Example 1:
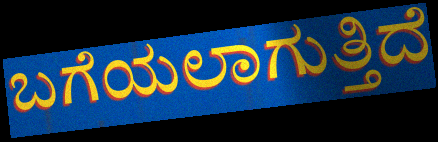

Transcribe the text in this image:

ಬಗೆಯಲಾಗುತ್ತಿದೆ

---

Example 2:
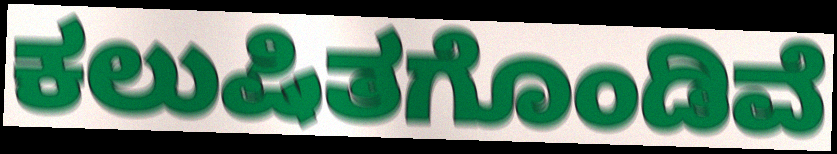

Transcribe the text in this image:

ಕಲುಷಿತಗೊಂಡಿವೆ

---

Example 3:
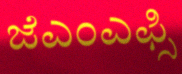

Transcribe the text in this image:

ಜೆಎಂಎಫ್ಸಿ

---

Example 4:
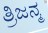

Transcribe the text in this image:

ತ್ರಿಜನ್ಮ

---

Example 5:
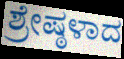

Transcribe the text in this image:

ಶ್ರೇಷ್ಠಳಾದ